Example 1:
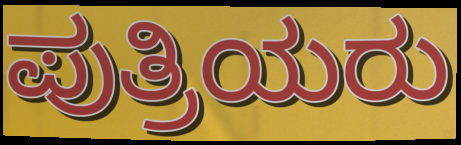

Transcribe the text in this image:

ಪುತ್ರಿಯರು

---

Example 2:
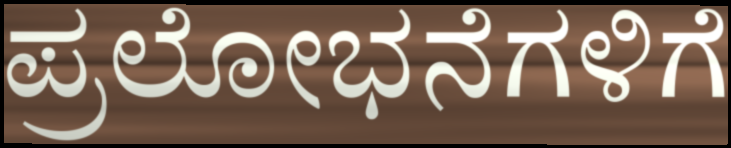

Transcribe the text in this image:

ಪ್ರಲೋಭನೆಗಳಿಗೆ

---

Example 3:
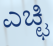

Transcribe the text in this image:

ಎಚ್ಟಿ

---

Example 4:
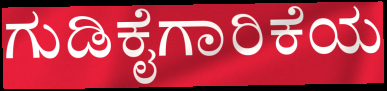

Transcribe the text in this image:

ಗುಡಿಕೈಗಾರಿಕೆಯ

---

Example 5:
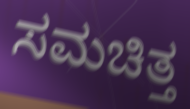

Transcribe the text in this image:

ಸಮಚಿತ್ತ